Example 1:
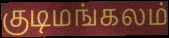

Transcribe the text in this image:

குடிமங்கலம்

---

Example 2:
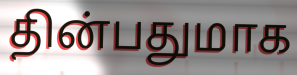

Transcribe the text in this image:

தின்பதுமாக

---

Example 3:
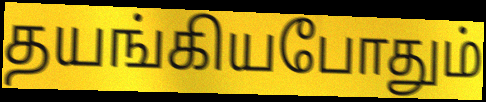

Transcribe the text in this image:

தயங்கியபோதும்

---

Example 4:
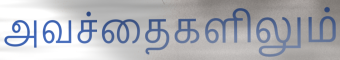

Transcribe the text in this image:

அவச்தைகளிலும்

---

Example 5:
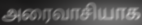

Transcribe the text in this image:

அரைவாசியாக